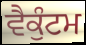
ਵੈਕੁੰਟਮ